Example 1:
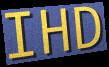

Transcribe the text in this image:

IHD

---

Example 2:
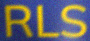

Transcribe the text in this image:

RLS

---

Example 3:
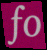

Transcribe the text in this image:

fo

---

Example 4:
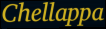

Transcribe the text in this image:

Chellappa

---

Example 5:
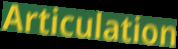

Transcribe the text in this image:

Articulation